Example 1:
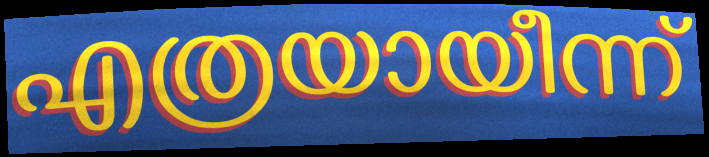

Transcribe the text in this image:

എത്രയായീന്ന്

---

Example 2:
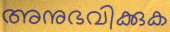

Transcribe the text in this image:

അനുഭവിക്കുക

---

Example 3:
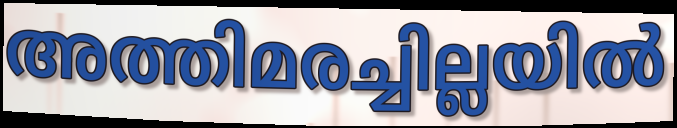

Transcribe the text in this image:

അത്തിമരച്ചില്ലയിൽ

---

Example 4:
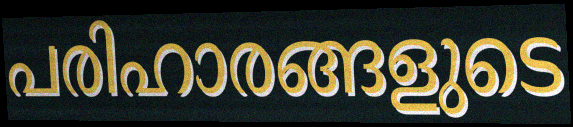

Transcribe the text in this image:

പരിഹാരങ്ങളുടെ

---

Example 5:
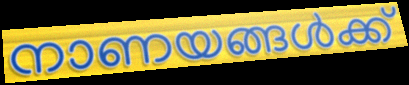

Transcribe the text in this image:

നാണയങ്ങൾക്ക്